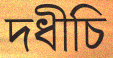
দধীচি